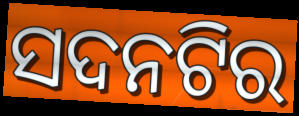
ସଦନଟିର